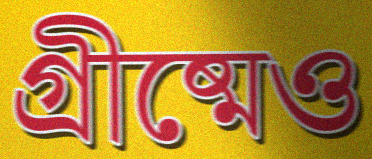
গ্রীষ্মেও